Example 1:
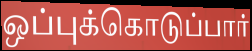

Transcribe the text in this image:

ஒப்புக்கொடுப்பார்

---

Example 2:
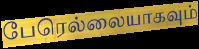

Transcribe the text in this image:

பேரெல்லையாகவும்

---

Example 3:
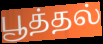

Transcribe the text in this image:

பூத்தல்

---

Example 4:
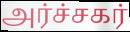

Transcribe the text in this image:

அர்ச்சகர்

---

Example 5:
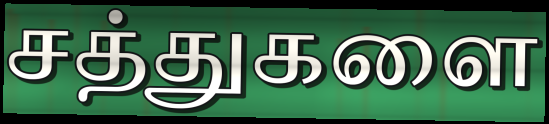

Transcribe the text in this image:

சத்துகளை